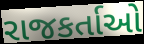
રાજકર્તાઓ